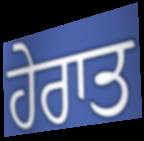
ਹੇਰਾਤ